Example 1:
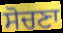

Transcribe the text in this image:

ਸੋਚਣਾ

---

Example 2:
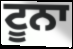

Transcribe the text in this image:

ਟੂਨਾ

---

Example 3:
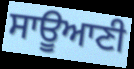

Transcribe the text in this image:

ਸਾਊਆਣੀ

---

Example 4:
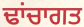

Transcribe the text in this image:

ਢਾਂਚਾਗਤ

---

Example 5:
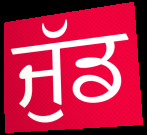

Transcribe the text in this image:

ਜੁੱਡ